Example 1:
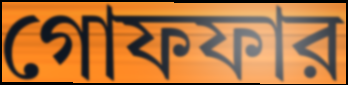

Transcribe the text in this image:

গোফফার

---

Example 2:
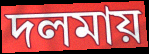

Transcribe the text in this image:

দলমায়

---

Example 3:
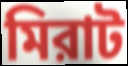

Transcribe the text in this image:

মিরাট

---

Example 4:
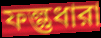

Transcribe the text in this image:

ফল্গুধারা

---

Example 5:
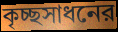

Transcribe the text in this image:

কৃচ্ছসাধনের